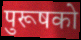
पुरूषको